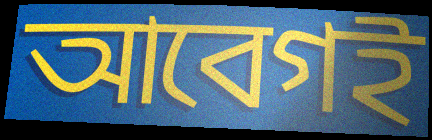
আবেগই